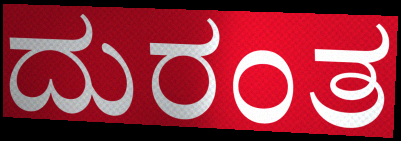
ದುರಂತ